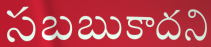
సబబుకాదని